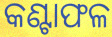
କଣ୍ଟାଫଳ